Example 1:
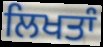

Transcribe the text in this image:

ਲਿਖਤਾੰ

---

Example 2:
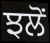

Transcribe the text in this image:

ਝਲੋਂ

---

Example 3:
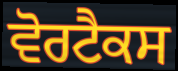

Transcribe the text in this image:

ਵੋਰਟੈਕਸ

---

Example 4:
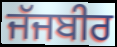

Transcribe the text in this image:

ਜੱਜਬੀਰ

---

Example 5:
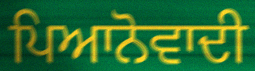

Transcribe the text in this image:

ਪਿਆਨੋਵਾਦੀ